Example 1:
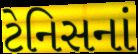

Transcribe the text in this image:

ટેનિસનાં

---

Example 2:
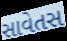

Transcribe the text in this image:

સાવેતસ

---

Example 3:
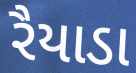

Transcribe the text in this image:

રૈયાડા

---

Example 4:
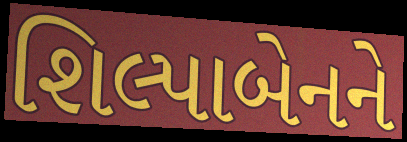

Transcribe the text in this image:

શિલ્પાબેનને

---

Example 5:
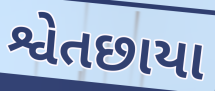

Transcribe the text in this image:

શ્વેતછાયા